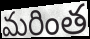
మరింత